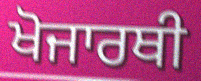
ਖੋਜਾਰਥੀ